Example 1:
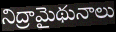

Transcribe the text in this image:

నిద్రామైథునాలు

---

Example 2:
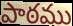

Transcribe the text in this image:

పాఠము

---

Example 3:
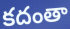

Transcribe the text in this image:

కదంతా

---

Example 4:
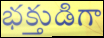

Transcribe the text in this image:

భక్తుడిగా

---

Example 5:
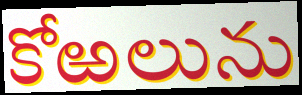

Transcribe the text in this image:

కోఱలును